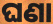
ଘଣା